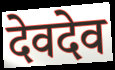
देवदेव